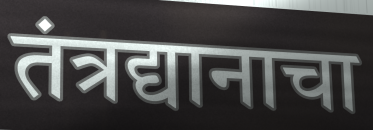
तंत्रद्यानाचा